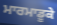
ਮਾਰਮਾਡੂਕੇ